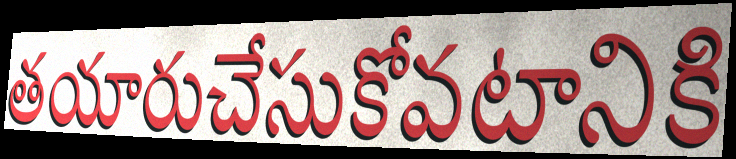
తయారుచేసుకోవటానికి